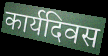
कार्यदिवस